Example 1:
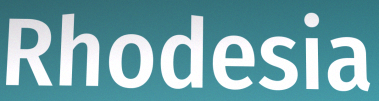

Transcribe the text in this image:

Rhodesia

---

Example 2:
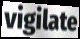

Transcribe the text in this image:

vigilate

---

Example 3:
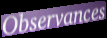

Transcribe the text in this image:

Observances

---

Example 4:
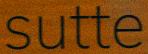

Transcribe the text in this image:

sutte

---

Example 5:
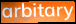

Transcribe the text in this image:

arbitary